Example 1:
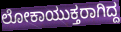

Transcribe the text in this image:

ಲೋಕಾಯುಕ್ತರಾಗಿದ್ದ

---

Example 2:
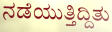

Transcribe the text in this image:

ನಡೆಯುತ್ತಿದ್ದಿತು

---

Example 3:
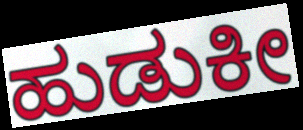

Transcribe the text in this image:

ಹುಡುಕೀ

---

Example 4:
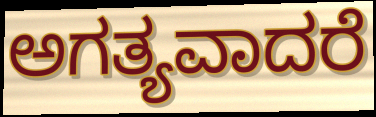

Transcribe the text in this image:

ಅಗತ್ಯವಾದರೆ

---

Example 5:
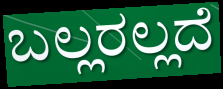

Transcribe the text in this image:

ಬಲ್ಲರಲ್ಲದೆ